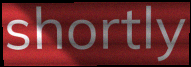
shortly